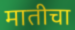
मातीचा